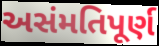
અસંમતિપૂર્ણ